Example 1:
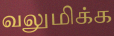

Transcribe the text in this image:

வலுமிக்க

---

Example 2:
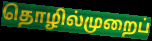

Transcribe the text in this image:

தொழில்முறைப்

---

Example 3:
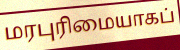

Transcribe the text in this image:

மரபுரிமையாகப்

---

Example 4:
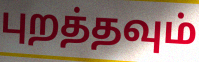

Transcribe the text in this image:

புறத்தவும்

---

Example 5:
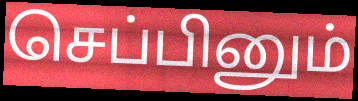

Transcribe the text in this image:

செப்பினும்